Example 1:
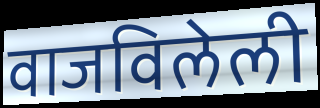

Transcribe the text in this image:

वाजविलेली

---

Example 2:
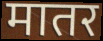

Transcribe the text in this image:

मातर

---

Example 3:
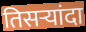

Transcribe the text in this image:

तिसऱ्यांदा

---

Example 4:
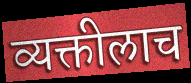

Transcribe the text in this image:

व्यक्तीलाच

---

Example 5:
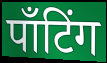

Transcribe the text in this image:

पाँटिंग